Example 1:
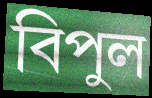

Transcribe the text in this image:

বিপুল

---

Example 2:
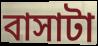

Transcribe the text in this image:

বাসাটা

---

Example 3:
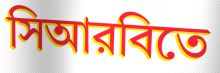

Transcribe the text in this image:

সিআরবিতে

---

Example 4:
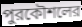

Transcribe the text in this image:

পুরকৌশলের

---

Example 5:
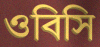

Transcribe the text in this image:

ওবিসি